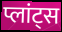
प्लांट्स